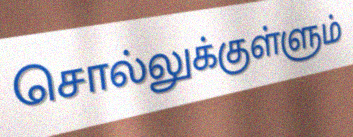
சொல்லுக்குள்ளும்